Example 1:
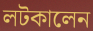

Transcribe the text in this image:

লটকালেন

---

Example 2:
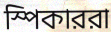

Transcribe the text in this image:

স্পিকাররা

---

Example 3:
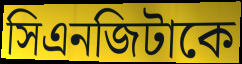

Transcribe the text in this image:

সিএনজিটাকে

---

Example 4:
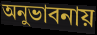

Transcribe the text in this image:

অনুভাবনায়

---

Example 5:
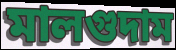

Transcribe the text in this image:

মালগুদাম